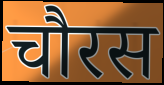
चौरस